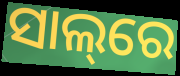
ସାଲ୍‌ରେ